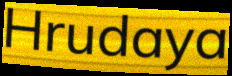
Hrudaya